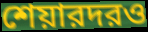
শেয়ারদরও